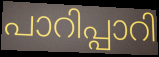
പാറിപ്പാറി